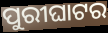
ପୁରୀଘାଟର